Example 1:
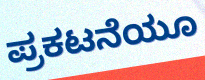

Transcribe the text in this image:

ಪ್ರಕಟನೆಯೂ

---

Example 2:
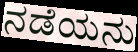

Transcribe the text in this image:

ನಡೆಯನು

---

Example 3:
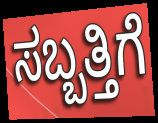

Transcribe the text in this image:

ಸಬ್ಬತ್ತಿಗೆ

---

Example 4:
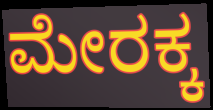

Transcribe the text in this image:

ಮೇರಕ್ಕ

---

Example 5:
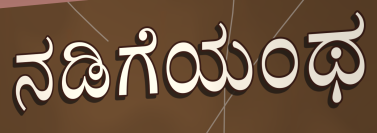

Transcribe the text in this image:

ನಡಿಗೆಯಂಥ